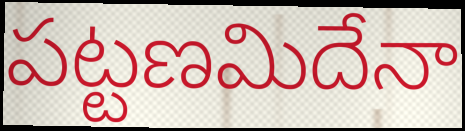
పట్టణమిదేనా